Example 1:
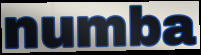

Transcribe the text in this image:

numba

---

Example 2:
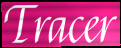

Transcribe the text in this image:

Tracer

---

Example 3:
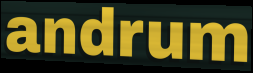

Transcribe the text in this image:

andrum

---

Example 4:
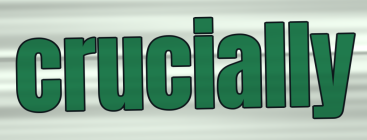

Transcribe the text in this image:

crucially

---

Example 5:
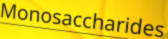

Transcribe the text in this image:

Monosaccharides